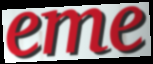
eme